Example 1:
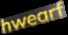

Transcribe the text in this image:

hwearf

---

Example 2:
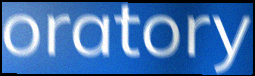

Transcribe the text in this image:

oratory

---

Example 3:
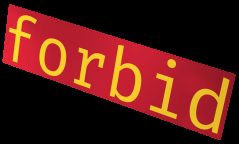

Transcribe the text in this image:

forbid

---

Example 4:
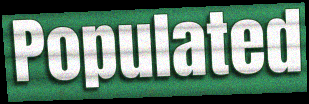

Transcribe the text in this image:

Populated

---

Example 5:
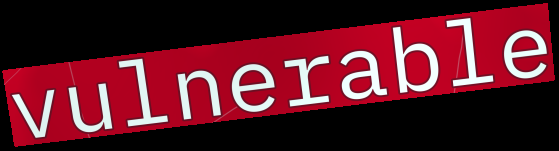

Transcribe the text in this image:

vulnerable